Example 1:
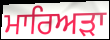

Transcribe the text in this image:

ਮਾਰਿਅੜਾ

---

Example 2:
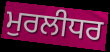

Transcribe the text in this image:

ਮੁਰਲੀਧਰ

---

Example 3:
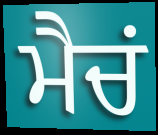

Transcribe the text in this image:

ਮੈਚਂ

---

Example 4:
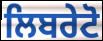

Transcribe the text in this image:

ਲਿਬਰੇਟੋ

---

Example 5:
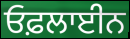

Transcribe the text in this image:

ਓਫ਼ਲਾਈਨ